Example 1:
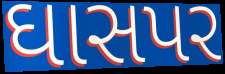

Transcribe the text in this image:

ઘાસપર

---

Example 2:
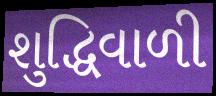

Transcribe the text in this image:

શુદ્ધિવાળી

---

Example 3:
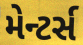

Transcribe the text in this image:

મેન્ટર્સ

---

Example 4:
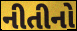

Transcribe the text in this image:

નીતીનો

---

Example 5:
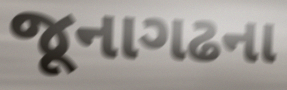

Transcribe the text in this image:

જૂનાગઢના